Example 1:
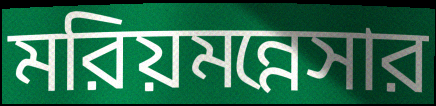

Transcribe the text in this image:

মরিয়মন্নেসার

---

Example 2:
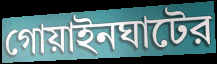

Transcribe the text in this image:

গোয়াইনঘাটের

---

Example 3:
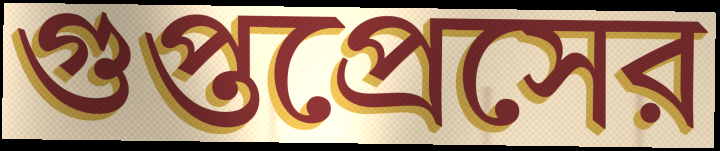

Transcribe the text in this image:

গুপ্তপ্রেসের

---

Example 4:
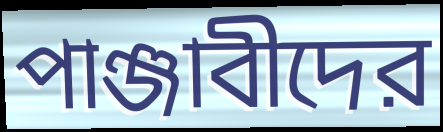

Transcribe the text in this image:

পাঞ্জাবীদের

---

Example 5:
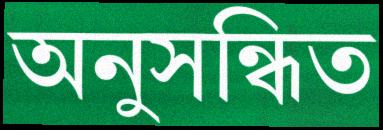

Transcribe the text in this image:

অনুসন্ধিত